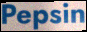
Pepsin